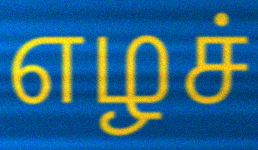
எழச்